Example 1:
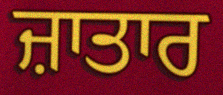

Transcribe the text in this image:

ਜ਼ਾਤਾਰ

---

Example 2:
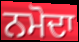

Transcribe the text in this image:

ਨਮੋਦਾ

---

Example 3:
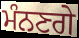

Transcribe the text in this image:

ਮੰਨਣਗੇ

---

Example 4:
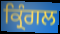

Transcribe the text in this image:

ਕ੍ਰਿੰਗਲ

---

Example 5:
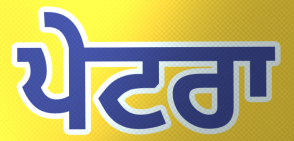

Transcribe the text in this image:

ਪੇਟਰਾ